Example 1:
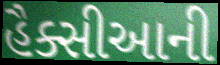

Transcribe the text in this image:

હૈક્સીઆની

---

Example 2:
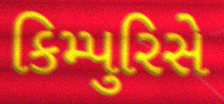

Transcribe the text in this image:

કિમ્પુરિસે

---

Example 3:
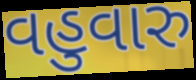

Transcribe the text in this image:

વહુવારુ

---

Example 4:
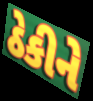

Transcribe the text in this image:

ઠેકીને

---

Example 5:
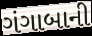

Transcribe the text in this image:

ગંગાબાની